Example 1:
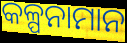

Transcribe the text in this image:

କଳ୍ପନାମାନ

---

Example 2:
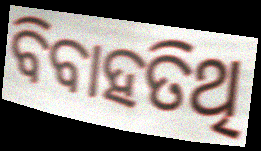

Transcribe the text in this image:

ବିବାହତିଥି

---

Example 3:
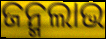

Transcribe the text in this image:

ଜନ୍ମଲାଭ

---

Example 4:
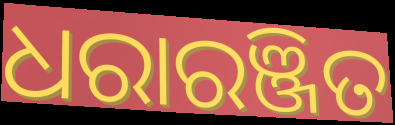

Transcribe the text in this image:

ଧରାରଞ୍ଜିତ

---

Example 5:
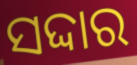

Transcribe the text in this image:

ସଦ୍ଦାର